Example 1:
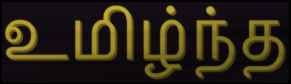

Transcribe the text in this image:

உமிழ்ந்த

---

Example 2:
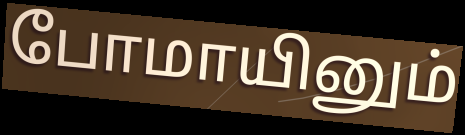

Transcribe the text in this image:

போமாயினும்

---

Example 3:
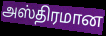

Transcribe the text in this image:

அஸ்திரமான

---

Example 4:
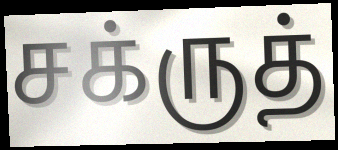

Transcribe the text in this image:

சக்ருத்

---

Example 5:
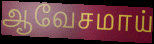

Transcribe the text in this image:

ஆவேசமாய்